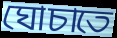
ঘোচাতে